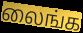
லைங்க